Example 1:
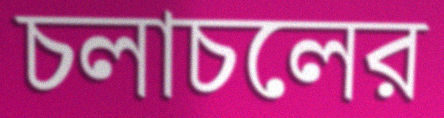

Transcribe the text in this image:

চলাচলের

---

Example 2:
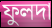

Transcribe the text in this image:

ফুলদা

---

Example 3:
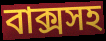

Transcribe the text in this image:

বাক্সসহ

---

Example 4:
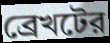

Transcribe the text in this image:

ব্রেখটের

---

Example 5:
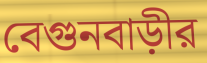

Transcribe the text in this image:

বেগুনবাড়ীর